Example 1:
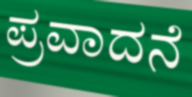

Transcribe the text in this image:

ಪ್ರವಾದನೆ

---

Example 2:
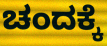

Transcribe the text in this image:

ಚಂದಕ್ಕೆ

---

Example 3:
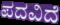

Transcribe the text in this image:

ಪದವಿದೆ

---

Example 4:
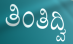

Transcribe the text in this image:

ತಿಂತಿದ್ವಿ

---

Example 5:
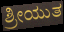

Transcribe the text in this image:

ಶ್ರೀಯುತ